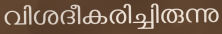
വിശദീകരിച്ചിരുന്നു